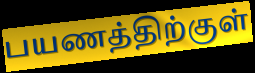
பயணத்திற்குள்